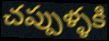
చప్పుళ్ళకి